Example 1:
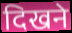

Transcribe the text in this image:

दिखने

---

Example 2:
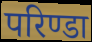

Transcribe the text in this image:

परिण्डा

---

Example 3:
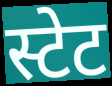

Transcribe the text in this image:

स्टेट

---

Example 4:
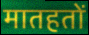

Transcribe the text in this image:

मातहतों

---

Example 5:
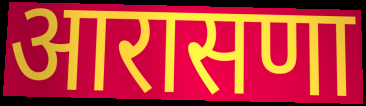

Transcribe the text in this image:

आरासणा